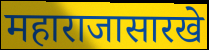
महाराजासारखे